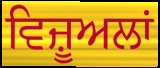
ਵਿਜ਼ੂਅਲਾਂ